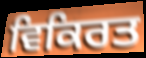
ਵਿਕਿਰਤ